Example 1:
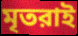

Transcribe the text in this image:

মৃতরাই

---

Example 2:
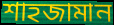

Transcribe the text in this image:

শাহজামান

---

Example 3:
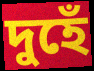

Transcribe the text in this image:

দুহেঁ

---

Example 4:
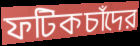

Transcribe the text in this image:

ফটিকচাঁদের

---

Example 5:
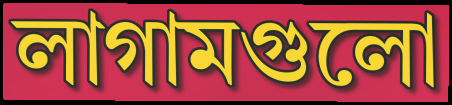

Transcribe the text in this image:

লাগামগুলো